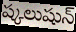
ష్కలుషున్